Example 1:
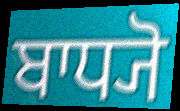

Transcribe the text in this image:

ਬਾਧ੍ਯੋ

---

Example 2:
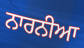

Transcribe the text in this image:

ਨਾਰਨੀਆ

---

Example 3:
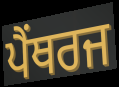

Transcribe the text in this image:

ਪੈਂਥਰਜ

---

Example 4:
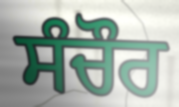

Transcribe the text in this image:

ਸੰਚੌਰ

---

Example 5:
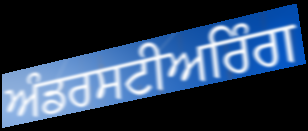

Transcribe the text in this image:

ਅੰਡਰਸਟੀਅਰਿੰਗ